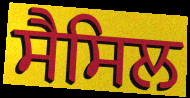
ਸੈਸਿਲ